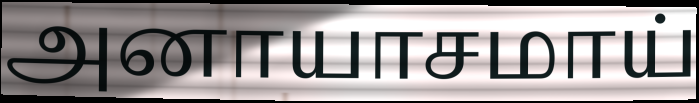
அனாயாசமாய்